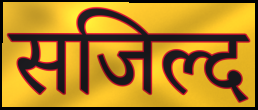
सजिल्द